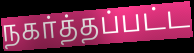
நகர்த்தப்பட்ட